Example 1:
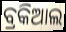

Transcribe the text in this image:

ବ୍ରକିଆଲ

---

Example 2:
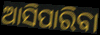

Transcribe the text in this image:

ଆସିପାରିବା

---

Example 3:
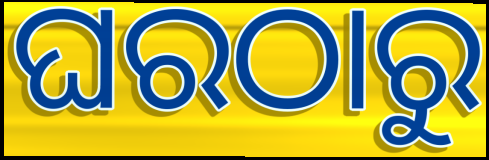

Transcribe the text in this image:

ଘରଠାରୁ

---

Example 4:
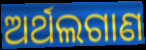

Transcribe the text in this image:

ଅର୍ଥଲଗାଣ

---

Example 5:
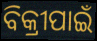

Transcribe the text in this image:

ବିକ୍ରୀପାଇଁ